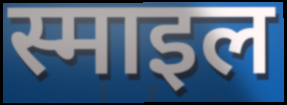
स्माइल